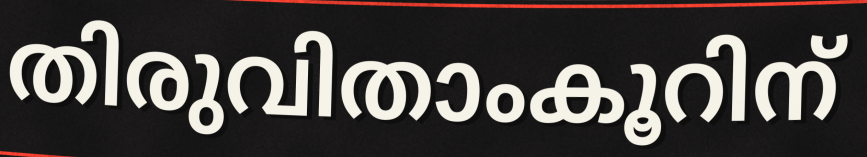
തിരുവിതാംകൂറിന്